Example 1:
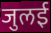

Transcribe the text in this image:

जुलई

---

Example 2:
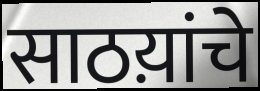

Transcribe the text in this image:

साठय़ांचे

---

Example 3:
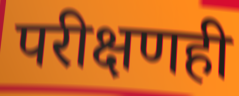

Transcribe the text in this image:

परीक्षणही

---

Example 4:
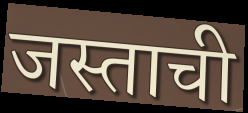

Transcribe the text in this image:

जस्ताची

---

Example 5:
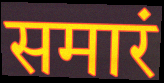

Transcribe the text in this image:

समारं